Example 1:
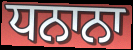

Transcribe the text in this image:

ਧਨਾਨਾ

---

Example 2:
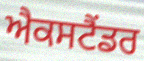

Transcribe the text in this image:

ਐਕਸਟੈਂਡਰ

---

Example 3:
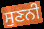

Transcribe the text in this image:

ਸੁਣਨੀ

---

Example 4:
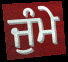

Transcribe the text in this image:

ਜੁੰਮੇ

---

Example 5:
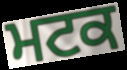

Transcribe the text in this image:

ਮਟਕ